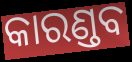
କାରଣ୍ଡବ